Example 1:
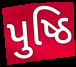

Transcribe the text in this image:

પુષ્ઠિ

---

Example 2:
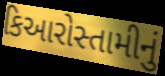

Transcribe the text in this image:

કિઆરોસ્તામીનું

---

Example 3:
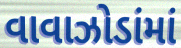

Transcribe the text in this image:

વાવાઝોડાંમાં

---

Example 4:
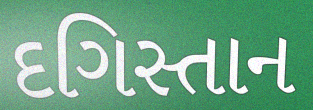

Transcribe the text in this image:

દગિસ્તાન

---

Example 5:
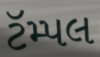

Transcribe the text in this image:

ટૅમ્પલ